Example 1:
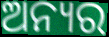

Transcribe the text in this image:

ଅନ୍ୟର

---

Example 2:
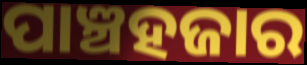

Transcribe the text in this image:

ପାଞ୍ଚହଜାର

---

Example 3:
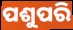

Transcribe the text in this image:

ପଶୁପରି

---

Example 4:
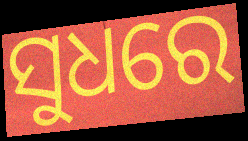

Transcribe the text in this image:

ସୁଧରେ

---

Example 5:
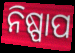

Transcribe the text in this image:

ନିଷ୍ପାପ